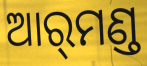
ଆର୍‌ମଣ୍ଡ